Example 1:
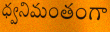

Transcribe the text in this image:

ధ్వనిమంతంగా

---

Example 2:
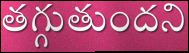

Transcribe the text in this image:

తగ్గుతుందని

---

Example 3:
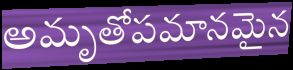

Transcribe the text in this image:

అమృతోపమానమైన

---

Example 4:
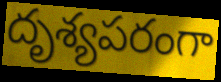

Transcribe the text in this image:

దృశ్యపరంగా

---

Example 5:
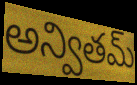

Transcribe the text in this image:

అన్వితమ్